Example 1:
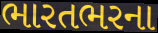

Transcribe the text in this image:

ભારતભરના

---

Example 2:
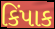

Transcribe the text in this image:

કિંપાક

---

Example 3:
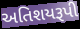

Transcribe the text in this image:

અતિશયરૂપી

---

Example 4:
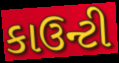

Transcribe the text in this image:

કાઉન્ટી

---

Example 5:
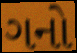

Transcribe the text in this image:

ગનો